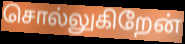
சொல்லுகிறேன்